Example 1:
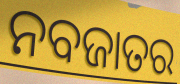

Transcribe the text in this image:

ନବଜାତର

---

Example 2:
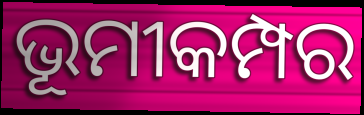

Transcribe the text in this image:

ଭୂମୀକମ୍ପର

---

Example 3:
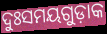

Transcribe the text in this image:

ଦୁଃସମୟଗୁଡ଼ାକ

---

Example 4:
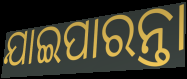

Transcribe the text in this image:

ଯାଇପାରନ୍ତା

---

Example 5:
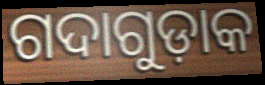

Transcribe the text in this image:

ଗଦାଗୁଡ଼ାକ